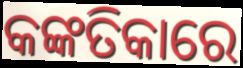
କଙ୍କତିକାରେ